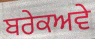
ਬਰੇਕਅਵੇ